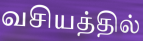
வசியத்தில்